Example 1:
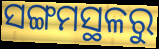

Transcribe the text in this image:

ସଙ୍ଗମସ୍ଥଳରୁ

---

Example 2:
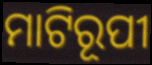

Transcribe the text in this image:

ମାଟିରୂପୀ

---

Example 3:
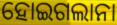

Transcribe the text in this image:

ହୋଇଗଲାନା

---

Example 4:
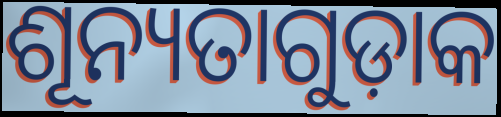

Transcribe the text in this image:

ଶୂନ୍ୟତାଗୁଡ଼ାକ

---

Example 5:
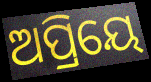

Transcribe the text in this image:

ଅପ୍ରିୟେ